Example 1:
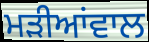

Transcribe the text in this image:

ਮੜੀਆਂਵਾਲ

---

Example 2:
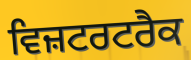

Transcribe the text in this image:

ਵਿਜ਼ਟਰਟਰੈਕ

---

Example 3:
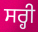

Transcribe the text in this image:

ਸਰ੍ਹੀ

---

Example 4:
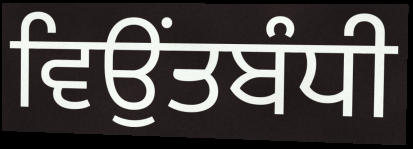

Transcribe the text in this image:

ਵਿਉਂਤਬੰਧੀ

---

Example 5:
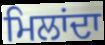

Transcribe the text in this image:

ਮਿਲਾਂਦਾ